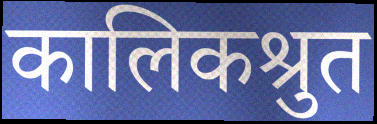
कालिकश्रुत